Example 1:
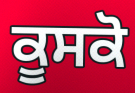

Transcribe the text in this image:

ਕੂਸਕੋ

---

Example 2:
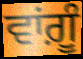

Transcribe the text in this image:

ਵਾਂਗ਼ੂੰ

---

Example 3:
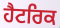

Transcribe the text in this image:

ਹੈਟਰਿਕ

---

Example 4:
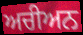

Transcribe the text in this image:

ਅਚੀਅਨ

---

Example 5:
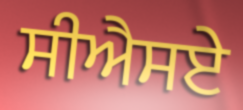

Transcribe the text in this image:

ਸੀਐਸਏ